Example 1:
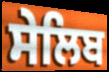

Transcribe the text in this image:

ਸੇਲਿਬ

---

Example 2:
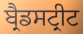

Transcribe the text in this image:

ਬ੍ਰੈਡਸਟ੍ਰੀਟ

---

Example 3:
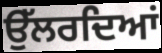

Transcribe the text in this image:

ਉੱਲਰਦਿਆਂ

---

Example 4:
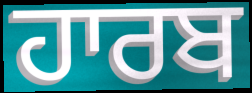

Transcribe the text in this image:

ਹਾਰਬ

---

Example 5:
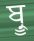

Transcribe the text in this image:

ਬ੍ਰੂ